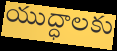
యుద్ధాలకు